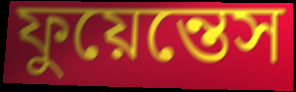
ফুয়েন্তেস